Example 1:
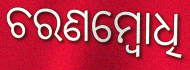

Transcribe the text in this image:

ଚରଣମ୍ବୋଧି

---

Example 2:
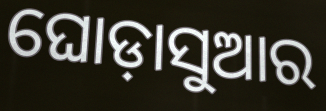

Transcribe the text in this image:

ଘୋଡ଼ାସୁଆର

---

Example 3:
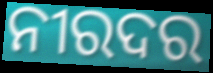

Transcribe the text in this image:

ନୀରଦର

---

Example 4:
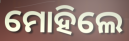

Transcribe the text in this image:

ମୋହିଲେ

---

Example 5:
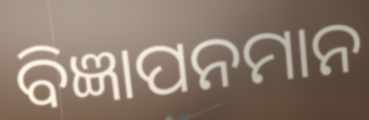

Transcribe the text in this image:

ବିଜ୍ଞାପନମାନ